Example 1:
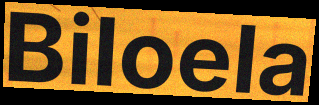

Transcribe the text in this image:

Biloela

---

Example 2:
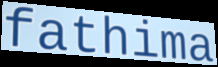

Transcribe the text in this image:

fathima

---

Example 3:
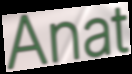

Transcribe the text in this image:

Anat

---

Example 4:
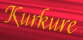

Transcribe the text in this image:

Kurkure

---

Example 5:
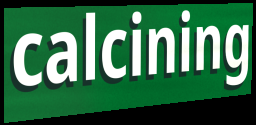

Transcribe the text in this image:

calcining